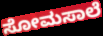
ಸೋಮಸಾಲೆ